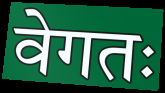
वेगतः